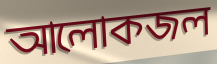
আলোকজল